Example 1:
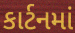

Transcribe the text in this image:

કાર્ટનમાં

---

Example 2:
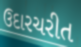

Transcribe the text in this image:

ઉદારચરીત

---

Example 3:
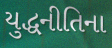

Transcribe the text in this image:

યુદ્ધનીતિના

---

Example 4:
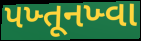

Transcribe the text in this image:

પખ્તૂનખ્વા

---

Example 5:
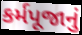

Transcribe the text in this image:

કર્મપૂજાનું